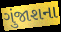
ગુંજાશના